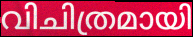
വിചിത്രമായി